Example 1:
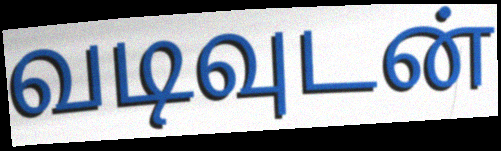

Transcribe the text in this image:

வடிவுடன்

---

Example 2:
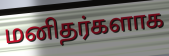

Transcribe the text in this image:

மனிதர்களாக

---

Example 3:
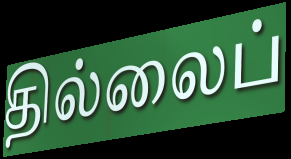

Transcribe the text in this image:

தில்லைப்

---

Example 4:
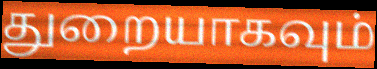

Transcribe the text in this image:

துறையாகவும்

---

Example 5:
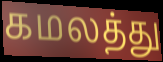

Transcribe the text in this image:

கமலத்து